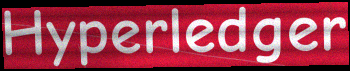
Hyperledger